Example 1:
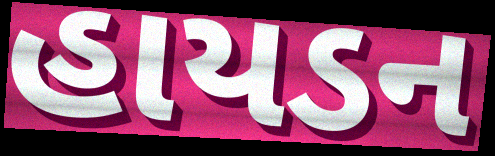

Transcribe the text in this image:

હાયડન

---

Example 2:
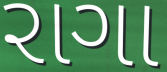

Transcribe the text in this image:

રાગા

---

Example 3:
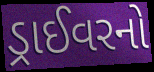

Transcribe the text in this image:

ડ્રાઈવરનો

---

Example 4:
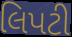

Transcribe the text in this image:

લિપટી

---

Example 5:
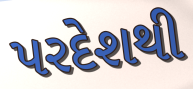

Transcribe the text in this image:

પરદેશથી